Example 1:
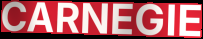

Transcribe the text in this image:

CARNEGIE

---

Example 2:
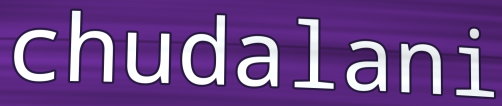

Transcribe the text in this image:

chudalani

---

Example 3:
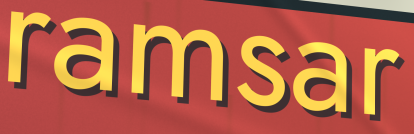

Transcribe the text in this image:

ramsar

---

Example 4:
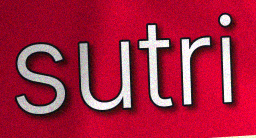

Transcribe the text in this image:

sutri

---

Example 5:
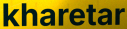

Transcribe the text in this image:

kharetar